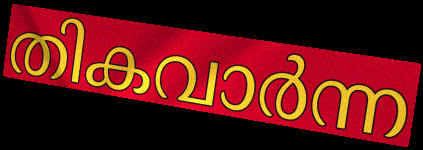
തികവാർന്ന